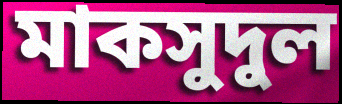
মাকসুদুল